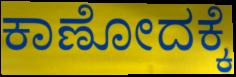
ಕಾಣೋದಕ್ಕೆ